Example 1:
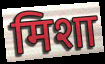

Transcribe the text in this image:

मिशा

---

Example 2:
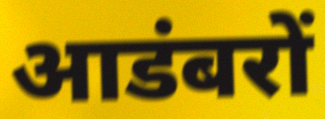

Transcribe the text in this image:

आडंबरों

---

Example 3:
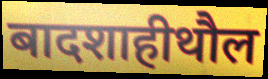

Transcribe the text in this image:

बादशाहीथौल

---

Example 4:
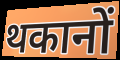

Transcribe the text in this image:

थकानों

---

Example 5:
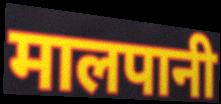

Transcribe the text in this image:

मालपानी